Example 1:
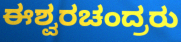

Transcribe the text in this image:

ಈಶ್ವರಚಂದ್ರರು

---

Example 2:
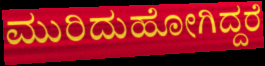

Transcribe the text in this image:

ಮುರಿದುಹೋಗಿದ್ದರೆ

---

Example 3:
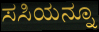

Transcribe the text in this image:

ಸಸಿಯನ್ನೂ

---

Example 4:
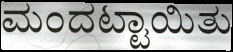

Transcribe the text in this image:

ಮಂದಟ್ಟಾಯಿತು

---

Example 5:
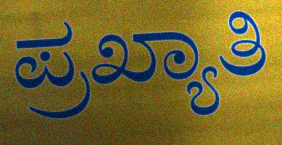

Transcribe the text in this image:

ಪ್ರಖ್ಯಾತಿ